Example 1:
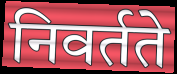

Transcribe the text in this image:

निवर्तते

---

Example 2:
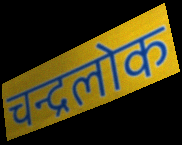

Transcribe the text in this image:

चन्द्रलोक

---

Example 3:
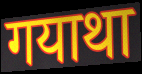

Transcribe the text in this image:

गयाथा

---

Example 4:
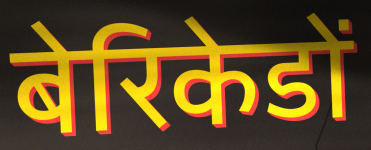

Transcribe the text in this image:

बेरिकेडों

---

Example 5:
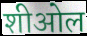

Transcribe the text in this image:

शीओल